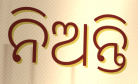
ନିଅନ୍ତି